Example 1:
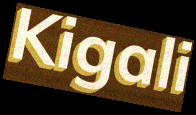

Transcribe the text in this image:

Kigali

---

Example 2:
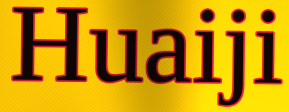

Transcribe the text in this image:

Huaiji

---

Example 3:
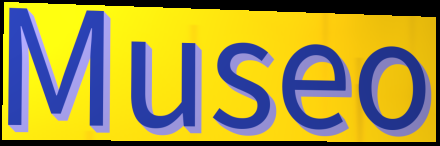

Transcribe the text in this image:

Museo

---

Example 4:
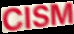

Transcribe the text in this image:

CISM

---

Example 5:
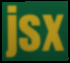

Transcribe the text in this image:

jsx